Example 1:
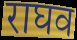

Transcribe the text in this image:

राघव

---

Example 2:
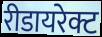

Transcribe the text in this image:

रीडायरेक्ट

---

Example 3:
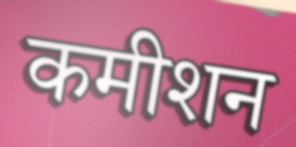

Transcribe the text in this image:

कमीशन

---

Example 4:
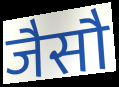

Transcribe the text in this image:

जैसौ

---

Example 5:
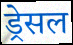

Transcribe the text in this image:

ड्रेसल